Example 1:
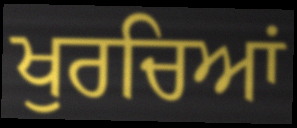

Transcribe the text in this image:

ਖੁਰਚਿਆਂ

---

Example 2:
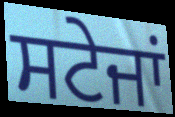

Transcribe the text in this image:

ਸਟੇਜਾਂ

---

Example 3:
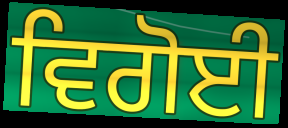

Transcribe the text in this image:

ਵਿਗੋਈ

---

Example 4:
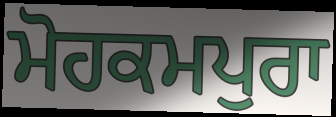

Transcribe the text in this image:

ਮੋਹਕਮਪੁਰਾ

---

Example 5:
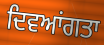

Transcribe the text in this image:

ਦਿਵਆਂਗਤਾ